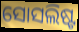
ସୋସଲିଷ୍ଟ